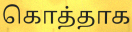
கொத்தாக